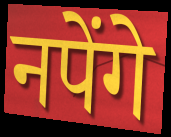
नपेंगे